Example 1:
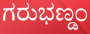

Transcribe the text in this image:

ಗರುಭಣ್ಡಂ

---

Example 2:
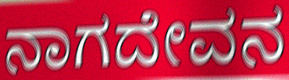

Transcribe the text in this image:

ನಾಗದೇವನ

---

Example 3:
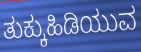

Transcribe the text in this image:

ತುಕ್ಕುಹಿಡಿಯುವ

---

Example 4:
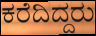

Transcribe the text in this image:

ಕರೆದಿದ್ದರು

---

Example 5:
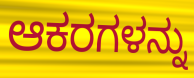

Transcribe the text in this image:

ಆಕರಗಳನ್ನು